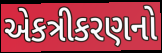
એકત્રીકરણનો